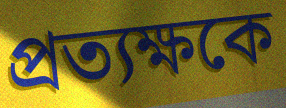
প্রত্যক্ষকে